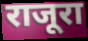
राजूरा